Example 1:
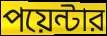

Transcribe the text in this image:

পয়েন্টার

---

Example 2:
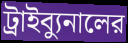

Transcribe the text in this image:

ট্রাইব্যুনালের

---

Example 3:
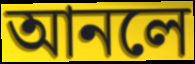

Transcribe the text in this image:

আনলে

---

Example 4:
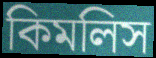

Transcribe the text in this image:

কিমলিস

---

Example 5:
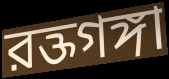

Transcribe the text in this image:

রক্তগঙ্গা